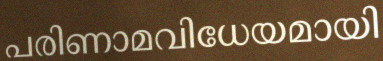
പരിണാമവിധേയമായി